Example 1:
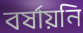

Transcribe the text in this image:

বর্ষায়নি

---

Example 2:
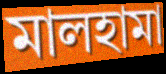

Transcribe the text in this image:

মালহামা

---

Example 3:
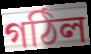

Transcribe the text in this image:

গঠিল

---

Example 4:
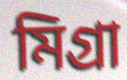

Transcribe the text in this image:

মিগ্রা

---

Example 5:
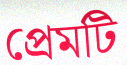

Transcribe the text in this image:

প্রেমটি